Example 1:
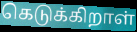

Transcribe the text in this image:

கெடுக்கிறாள்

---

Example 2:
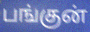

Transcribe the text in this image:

பங்குன்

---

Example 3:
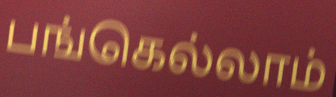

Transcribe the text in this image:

பங்கெல்லாம்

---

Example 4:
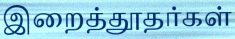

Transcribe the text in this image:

இறைத்தூதர்கள்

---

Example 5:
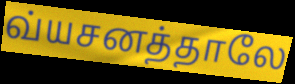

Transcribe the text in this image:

வ்யசனத்தாலே